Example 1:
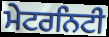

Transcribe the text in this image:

ਮੇਟਰਨਿਟੀ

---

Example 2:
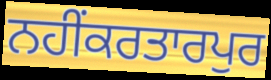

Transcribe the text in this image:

ਨਹੀਂਕਰਤਾਰਪੁਰ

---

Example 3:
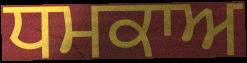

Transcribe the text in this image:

ਧਮਕਾਅ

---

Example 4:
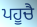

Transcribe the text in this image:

ਪਹੂਚੈ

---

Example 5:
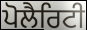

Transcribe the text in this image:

ਪੋਲੈਰਿਟੀ